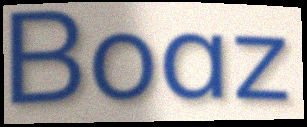
Boaz